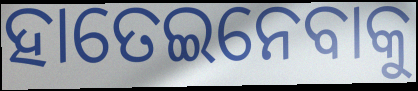
ହାତେଇନେବାକୁ